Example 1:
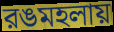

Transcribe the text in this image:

রঙমহলায়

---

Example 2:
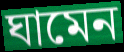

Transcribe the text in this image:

ঘামেন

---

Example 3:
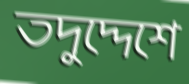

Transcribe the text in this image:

তদুদ্দেশে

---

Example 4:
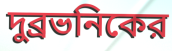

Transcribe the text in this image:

দুব্রভনিকের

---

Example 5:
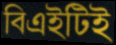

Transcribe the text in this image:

বিএইটিই